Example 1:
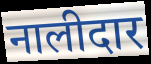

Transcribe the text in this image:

नालीदार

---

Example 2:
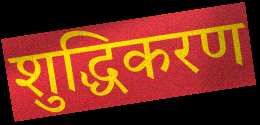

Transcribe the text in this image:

शुद्धिकरण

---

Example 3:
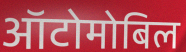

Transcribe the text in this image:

ऑटोमोबिल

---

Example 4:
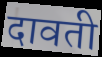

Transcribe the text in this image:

दावती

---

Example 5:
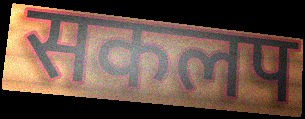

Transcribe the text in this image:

सकलप